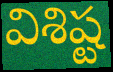
విశిష్ట